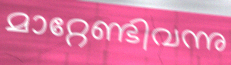
മാറ്റേണ്ടിവന്നു